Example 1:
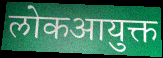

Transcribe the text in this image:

लोकआयुक्त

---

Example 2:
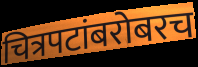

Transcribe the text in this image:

चित्रपटांबरोबरच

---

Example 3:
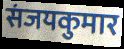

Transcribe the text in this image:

संजयकुमार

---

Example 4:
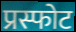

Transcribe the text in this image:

प्रस्फोट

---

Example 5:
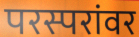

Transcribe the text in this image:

परस्परांवर